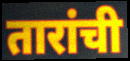
तारांची